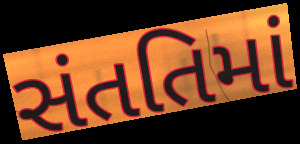
સંતતિમાં